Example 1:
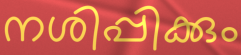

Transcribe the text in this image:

നശിപ്പിക്കും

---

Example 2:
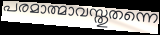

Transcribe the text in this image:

പരമാത്മാവസ്തുതന്നെ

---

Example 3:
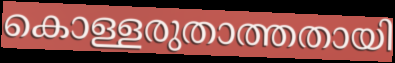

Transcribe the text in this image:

കൊള്ളരുതാത്തതായി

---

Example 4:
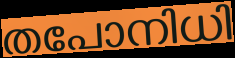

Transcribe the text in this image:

തപോനിധി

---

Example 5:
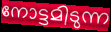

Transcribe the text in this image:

നോട്ടമിടുന്ന